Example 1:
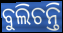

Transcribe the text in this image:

ବୁଲିଚନ୍ତି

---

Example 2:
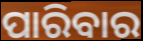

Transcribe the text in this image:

ପାରିବାର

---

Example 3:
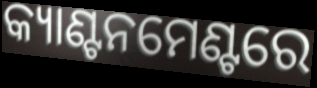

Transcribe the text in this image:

କ୍ୟାଣ୍ଟନମେଣ୍ଟରେ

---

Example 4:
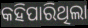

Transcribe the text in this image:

କହିପାରିଥିଲା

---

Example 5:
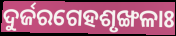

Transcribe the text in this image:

ଦୁର୍ଜରଗେହଶୃଙ୍ଖଳାଃ